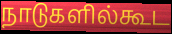
நாடுகளில்கூட